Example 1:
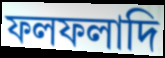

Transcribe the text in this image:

ফলফলাদি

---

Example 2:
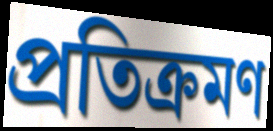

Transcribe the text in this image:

প্রতিক্রমণ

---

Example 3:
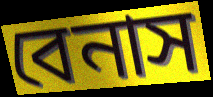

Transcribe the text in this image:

বেনাস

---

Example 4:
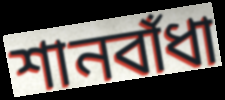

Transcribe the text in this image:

শানবাঁধা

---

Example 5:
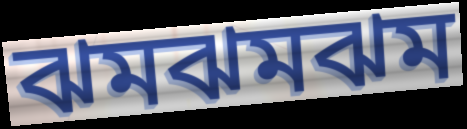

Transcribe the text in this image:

ঝমঝমঝম